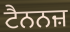
ਟੈਨਨਜ਼